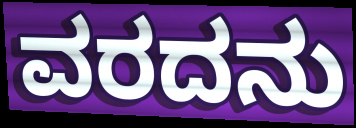
ವರದನು